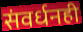
संवर्धनही